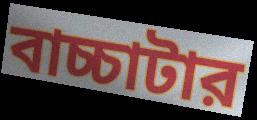
বাচ্চাটার